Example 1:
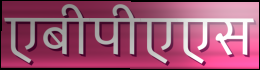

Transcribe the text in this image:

एबीपीएएस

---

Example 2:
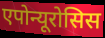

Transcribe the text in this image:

एपोन्यूरोसिस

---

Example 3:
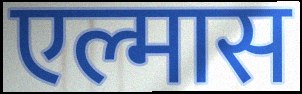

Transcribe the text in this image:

एल्मास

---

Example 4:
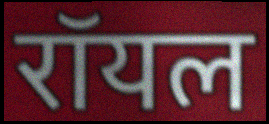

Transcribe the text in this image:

रॉयल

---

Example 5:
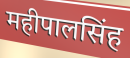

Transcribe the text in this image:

महीपालसिंह